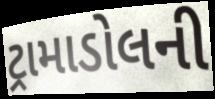
ટ્રામાડોલની